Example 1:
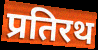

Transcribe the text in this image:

प्रतिरथ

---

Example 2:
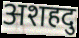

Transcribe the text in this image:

अशहदु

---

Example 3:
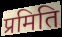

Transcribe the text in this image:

प्रमिति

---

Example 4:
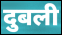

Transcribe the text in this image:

दुबली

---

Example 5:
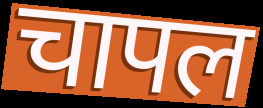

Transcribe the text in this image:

चापल